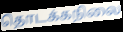
தொடக்கநிலை